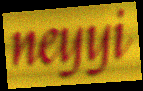
neyyi